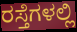
ರಸ್ತೆಗಳಲ್ಲಿ